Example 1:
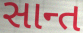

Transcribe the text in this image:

સાન્ત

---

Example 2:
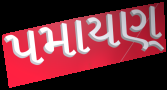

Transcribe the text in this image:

પમાયણ્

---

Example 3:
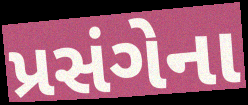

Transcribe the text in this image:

પ્રસંગેના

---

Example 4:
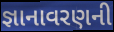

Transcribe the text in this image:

જ્ઞાનાવરણની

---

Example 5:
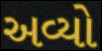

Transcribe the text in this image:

અવ્યો